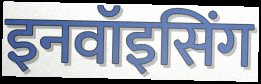
इनवॉइसिंग